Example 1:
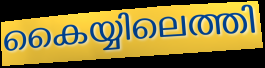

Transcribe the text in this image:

കൈയ്യിലെത്തി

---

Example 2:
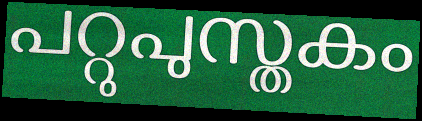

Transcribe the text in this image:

പറ്റുപുസ്തകം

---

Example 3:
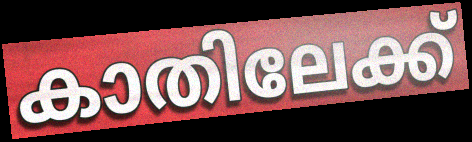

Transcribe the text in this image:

കാതിലേക്ക്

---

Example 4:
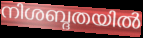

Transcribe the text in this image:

നിശബ്ദതയിൽ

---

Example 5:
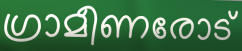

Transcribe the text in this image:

ഗ്രാമീണരോട്